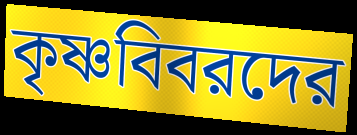
কৃষ্ণবিবরদের